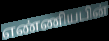
எண்ணியபின்